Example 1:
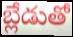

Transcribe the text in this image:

బ్లేడుతో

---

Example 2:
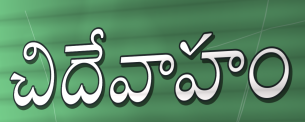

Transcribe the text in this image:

చిదేవాహం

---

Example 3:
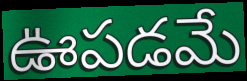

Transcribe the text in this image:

ఊపడమే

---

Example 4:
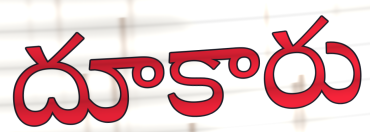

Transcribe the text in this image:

దూకారు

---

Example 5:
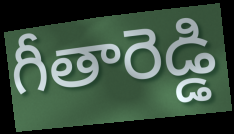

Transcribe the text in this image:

గీతారెడ్డి